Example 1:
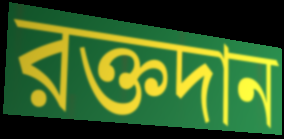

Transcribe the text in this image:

রক্তদান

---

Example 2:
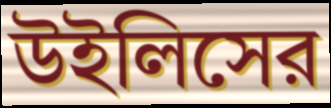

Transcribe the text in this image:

উইলিসের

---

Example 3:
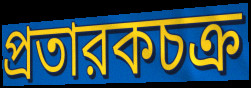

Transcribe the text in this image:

প্রতারকচক্র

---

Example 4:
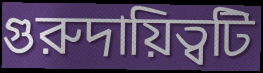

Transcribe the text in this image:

গুরুদায়িত্বটি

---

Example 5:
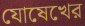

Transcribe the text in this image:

যোষেখের